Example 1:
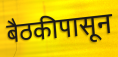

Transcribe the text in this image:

बैठकीपासून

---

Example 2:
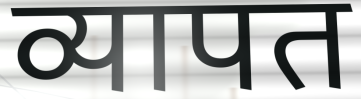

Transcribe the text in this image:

व्यापत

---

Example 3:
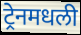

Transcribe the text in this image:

ट्रेनमधली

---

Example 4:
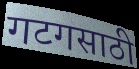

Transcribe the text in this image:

गटगसाठी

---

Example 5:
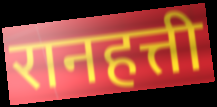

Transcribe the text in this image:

रानहत्ती